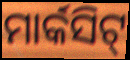
ମାର୍କସିଟ୍